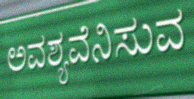
ಅವಶ್ಯವೆನಿಸುವ